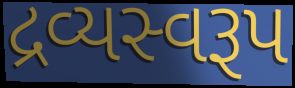
દ્રવ્યસ્વરૂપ